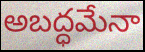
అబద్ధమేనా